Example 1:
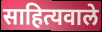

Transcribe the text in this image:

साहित्यवाले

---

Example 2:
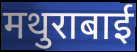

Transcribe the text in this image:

मथुराबाई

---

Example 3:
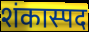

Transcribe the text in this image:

शंकास्पद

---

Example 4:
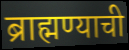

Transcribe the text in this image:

ब्राह्मण्याची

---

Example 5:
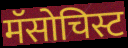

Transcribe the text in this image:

मॅसोचिस्ट